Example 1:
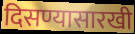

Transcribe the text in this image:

दिसण्यासारखी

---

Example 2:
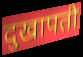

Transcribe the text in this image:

दुखापती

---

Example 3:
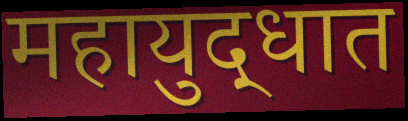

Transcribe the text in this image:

महायुद्धात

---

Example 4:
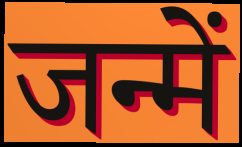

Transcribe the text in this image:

जन्में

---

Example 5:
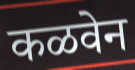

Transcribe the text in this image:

कळवेन